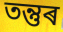
তন্তুৰ